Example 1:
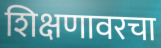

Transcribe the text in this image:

शिक्षणावरचा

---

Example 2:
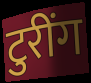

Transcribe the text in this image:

टुरींग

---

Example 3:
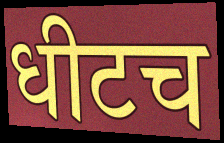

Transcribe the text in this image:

धीटच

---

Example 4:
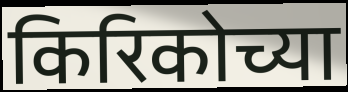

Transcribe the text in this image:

किरिकोच्या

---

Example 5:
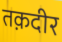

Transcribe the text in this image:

तक़दीर